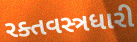
રક્તવસ્ત્રધારી